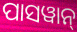
ପାସୱାନ୍